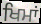
ਖਿਮਾਂ